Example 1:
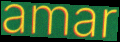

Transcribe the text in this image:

amar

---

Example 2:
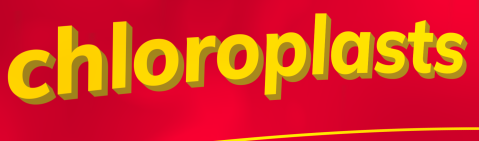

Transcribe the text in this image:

chloroplasts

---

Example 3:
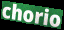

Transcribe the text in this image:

chorio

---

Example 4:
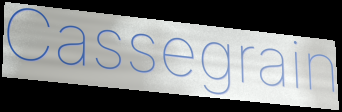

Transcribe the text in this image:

Cassegrain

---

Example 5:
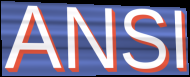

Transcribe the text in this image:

ANSI